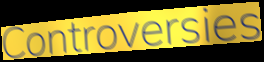
Controversies